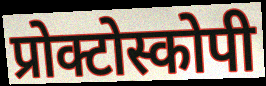
प्रोक्टोस्कोपी